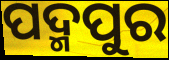
ପଦ୍ମପୁର